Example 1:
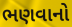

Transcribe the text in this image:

ભણવાનો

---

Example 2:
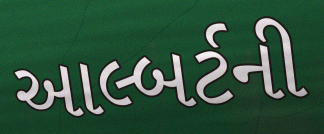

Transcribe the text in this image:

આલ્બર્ટની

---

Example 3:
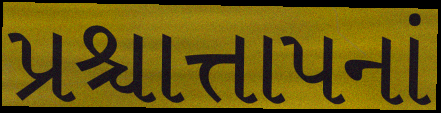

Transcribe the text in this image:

પ્રશ્ચાત્તાપનાં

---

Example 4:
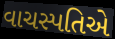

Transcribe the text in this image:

વાચસ્પતિએ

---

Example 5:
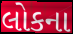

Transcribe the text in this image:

લોકના